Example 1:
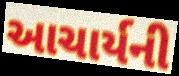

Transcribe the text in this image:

આચાર્યની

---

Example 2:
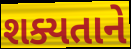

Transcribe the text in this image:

શક્યતાને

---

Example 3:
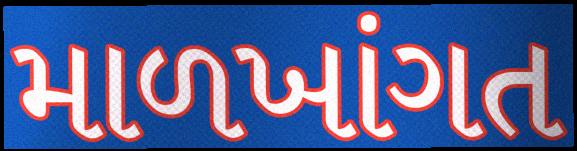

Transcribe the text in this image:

માળખાંગત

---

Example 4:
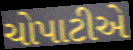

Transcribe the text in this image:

ચોપાટીએ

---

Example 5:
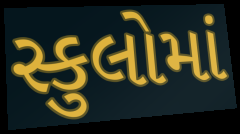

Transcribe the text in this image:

સ્કુલોમાં